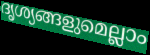
ദൃശ്യങ്ങളുമെല്ലാം